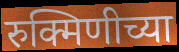
रुक्मिणीच्या